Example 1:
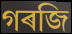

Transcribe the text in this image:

গৰজি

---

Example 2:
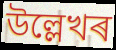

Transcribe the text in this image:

উল্লেখৰ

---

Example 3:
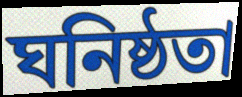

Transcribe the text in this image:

ঘনিষ্ঠতা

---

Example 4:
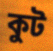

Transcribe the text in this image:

কুট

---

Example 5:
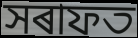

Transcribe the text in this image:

সৰাফত